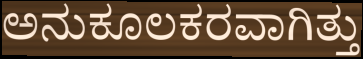
ಅನುಕೂಲಕರವಾಗಿತ್ತು